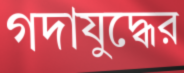
গদাযুদ্ধের